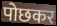
पोछकर